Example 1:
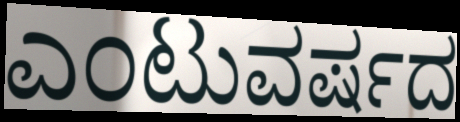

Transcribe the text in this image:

ಎಂಟುವರ್ಷದ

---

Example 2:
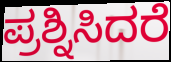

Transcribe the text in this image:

ಪ್ರಶ್ನಿಸಿದರೆ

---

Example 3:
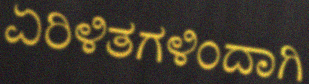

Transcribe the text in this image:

ಏರಿಳಿತಗಳಿಂದಾಗಿ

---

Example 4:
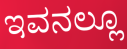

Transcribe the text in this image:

ಇವನಲ್ಲೂ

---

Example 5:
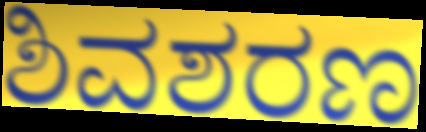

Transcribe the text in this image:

ಶಿವಶರಣ